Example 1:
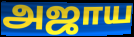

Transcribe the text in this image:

அஜாய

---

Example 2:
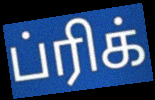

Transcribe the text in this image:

ப்ரிக்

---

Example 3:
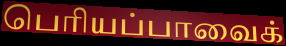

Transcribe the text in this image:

பெரியப்பாவைக்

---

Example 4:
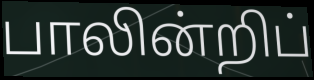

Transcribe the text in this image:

பாலின்றிப்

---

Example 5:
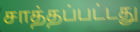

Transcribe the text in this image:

சாத்தப்பட்டது